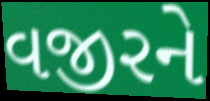
વજીરને